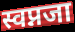
स्वप्नजा